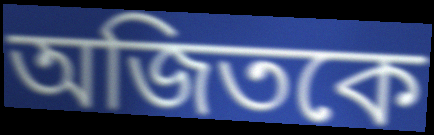
অজিতকে